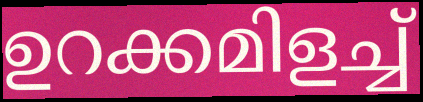
ഉറക്കമിളച്ച്